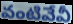
వంటివేవీ